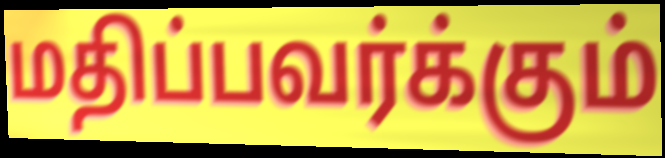
மதிப்பவர்க்கும்